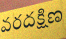
వరదక్షిణ